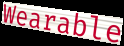
Wearable